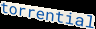
torrential